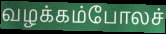
வழக்கம்போலச்